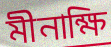
মীনাক্ষি